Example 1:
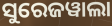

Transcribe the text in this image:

ସୁରେଜୱାଲା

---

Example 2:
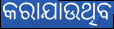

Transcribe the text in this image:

କରାଯାଉଥିବ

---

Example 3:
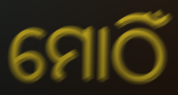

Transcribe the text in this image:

ମୋଠିଁ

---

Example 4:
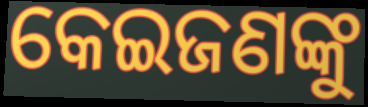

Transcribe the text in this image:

କେଇଜଣଙ୍କୁ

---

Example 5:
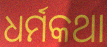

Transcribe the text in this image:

ଧର୍ମକଥା